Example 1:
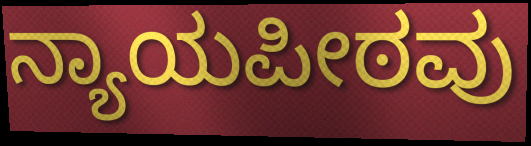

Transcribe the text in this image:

ನ್ಯಾಯಪೀಠವು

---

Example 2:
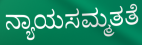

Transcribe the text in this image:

ನ್ಯಾಯಸಮ್ಮತತೆ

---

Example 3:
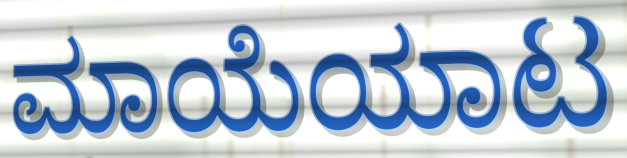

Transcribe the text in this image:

ಮಾಯೆಯಾಟ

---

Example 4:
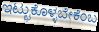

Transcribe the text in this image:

ಇಟ್ಟುಕೊಳ್ಳಬೇಕೆಂಬ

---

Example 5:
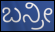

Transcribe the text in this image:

ಬನ್ರೀ